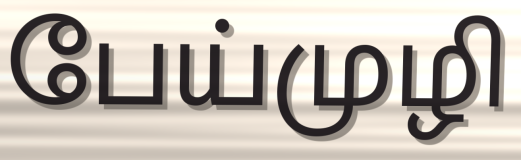
பேய்முழி